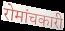
रोमांचकारी